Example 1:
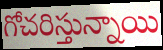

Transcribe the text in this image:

గోచరిస్తున్నాయి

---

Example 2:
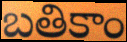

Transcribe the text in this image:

బతికాం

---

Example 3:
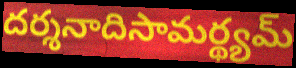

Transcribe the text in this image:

దర్శనాదిసామర్థ్యమ్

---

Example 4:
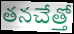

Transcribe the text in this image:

తనచేత్తో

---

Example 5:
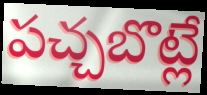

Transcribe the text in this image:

పచ్చబొట్లే